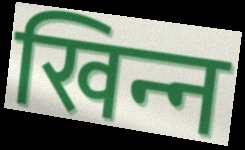
खिन्न